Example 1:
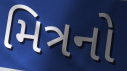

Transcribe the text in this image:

મિત્રનો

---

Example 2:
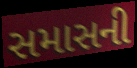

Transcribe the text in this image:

સમાસની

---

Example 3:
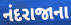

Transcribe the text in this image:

નંદરાજાના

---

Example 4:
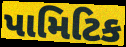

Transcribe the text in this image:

પામિટિક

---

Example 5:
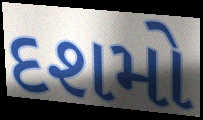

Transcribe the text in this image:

દશમો